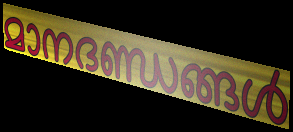
മാനദണ്ഡങ്ങൾ